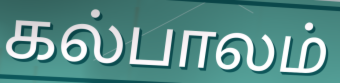
கல்பாலம்